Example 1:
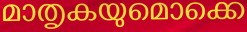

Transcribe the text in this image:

മാതൃകയുമൊക്കെ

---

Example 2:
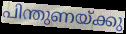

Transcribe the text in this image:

പിന്തുണയ്ക്കു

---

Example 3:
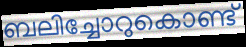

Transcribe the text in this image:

ബലിച്ചോറുകൊണ്ട്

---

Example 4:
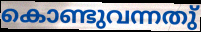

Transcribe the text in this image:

കൊണ്ടുവന്നതു്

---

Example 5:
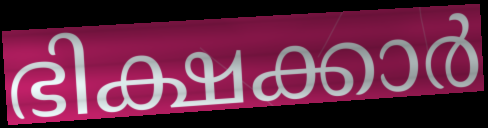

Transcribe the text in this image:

ഭിക്ഷക്കാർ